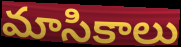
మాసికాలు